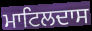
ਮਾਟਿਲਦਾਸ